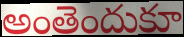
అంతెందుకూ